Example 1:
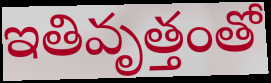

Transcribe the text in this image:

ఇతివృత్తంతో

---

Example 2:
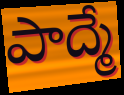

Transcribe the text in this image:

పాద్మే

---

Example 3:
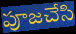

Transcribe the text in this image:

పూజచేసి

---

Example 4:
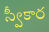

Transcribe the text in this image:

స్వీకార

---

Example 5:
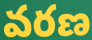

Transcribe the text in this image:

వరణ